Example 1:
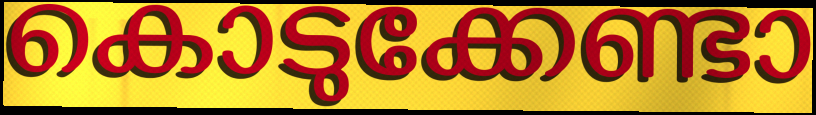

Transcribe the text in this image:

കൊടുക്കേണ്ടാ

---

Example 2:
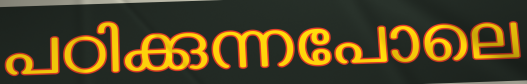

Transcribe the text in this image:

പഠിക്കുന്നപോലെ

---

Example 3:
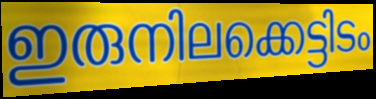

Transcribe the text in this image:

ഇരുനിലക്കെട്ടിടം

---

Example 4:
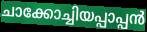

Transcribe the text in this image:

ചാക്കോച്ചിയപ്പാപ്പൻ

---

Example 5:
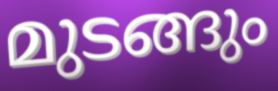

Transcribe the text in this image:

മുടങ്ങും